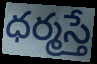
ధర్మస్తే